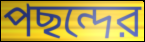
পছন্দের